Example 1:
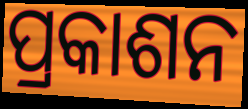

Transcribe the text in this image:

ପ୍ରକାଶନ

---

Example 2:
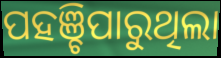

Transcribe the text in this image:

ପହଞ୍ଚିପାରୁଥିଲା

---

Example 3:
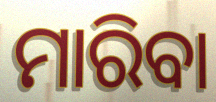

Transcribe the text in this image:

ମାରିବା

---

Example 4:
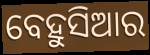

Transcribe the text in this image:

ବେହୁସିଆର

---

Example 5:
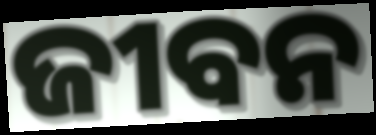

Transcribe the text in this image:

ଜୀବନ